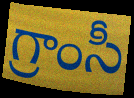
గ్రాంసీ